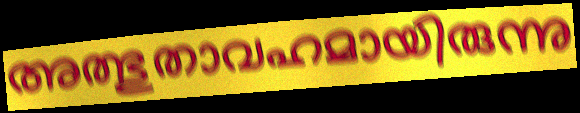
അത്ഭുതാവഹമായിരുന്നു